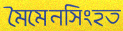
মৈমেনসিংহত